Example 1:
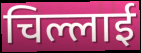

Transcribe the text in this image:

चिल्लाई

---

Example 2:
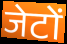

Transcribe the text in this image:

जेटों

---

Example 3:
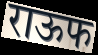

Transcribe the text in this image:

राऊफ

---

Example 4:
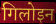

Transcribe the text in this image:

गिलोइन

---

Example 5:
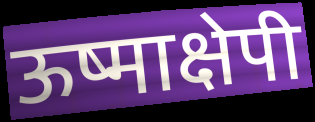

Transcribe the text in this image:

ऊष्माक्षेपी